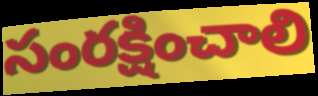
సంరక్షించాలి